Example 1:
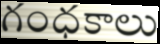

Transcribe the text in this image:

గంధకాలు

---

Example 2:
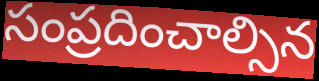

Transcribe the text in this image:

సంప్రదించాల్సిన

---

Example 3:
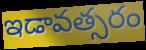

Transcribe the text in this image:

ఇడావత్సరం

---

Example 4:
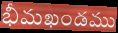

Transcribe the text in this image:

భీమఖండము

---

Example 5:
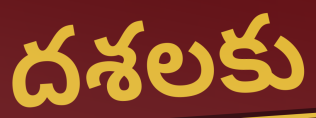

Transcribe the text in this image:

దశలకు